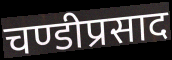
चण्डीप्रसाद